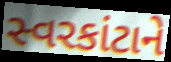
સ્વરકાંટાને